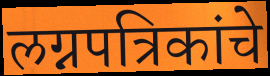
लग्नपत्रिकांचे